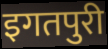
इगतपुरी